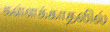
கள்ளக்காதலில்